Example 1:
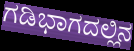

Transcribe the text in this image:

ಗಡಿಭಾಗದಲ್ಲಿನ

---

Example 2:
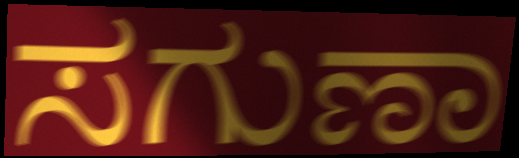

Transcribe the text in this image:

ಸಗುಣಾ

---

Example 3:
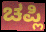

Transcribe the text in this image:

ಚಪ್ಲಿ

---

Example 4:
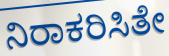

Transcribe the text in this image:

ನಿರಾಕರಿಸಿತೇ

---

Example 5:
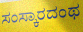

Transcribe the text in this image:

ಸಂಸ್ಕಾರದಂಥ